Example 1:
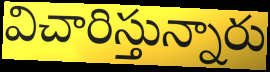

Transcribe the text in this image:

విచారిస్తున్నారు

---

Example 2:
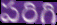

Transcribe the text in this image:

పరిగి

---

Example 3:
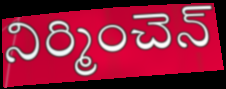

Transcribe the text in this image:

నిర్మించెన్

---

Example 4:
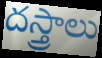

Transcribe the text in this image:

దస్త్రాలు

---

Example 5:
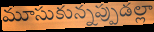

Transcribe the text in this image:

మూసుకున్నప్పుడల్లా